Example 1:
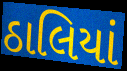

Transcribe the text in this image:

ઠાલિયાં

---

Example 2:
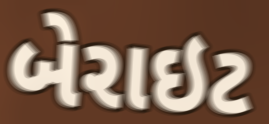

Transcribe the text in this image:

બેરાઇટ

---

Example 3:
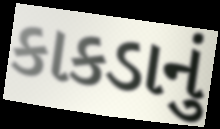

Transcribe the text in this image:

કાકડાનું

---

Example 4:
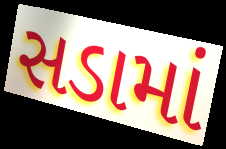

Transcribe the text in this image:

સડામાં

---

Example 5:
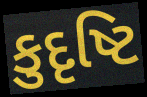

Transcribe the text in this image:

કુદૃષ્ટિ